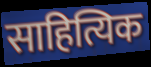
साहित्यिक